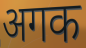
अगक